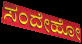
ಸಂದೇಹೋ